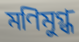
মণিমুগ্ধ